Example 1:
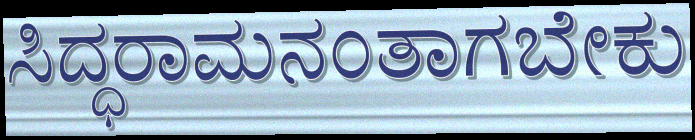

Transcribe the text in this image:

ಸಿದ್ಧರಾಮನಂತಾಗಬೇಕು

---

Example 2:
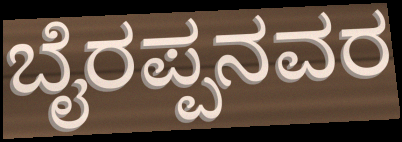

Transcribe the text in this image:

ಬೈರಪ್ಪನವರ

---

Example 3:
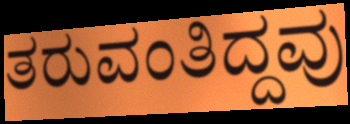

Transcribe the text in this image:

ತರುವಂತಿದ್ದವು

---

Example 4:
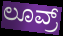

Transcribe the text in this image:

ಲೂವ್ರ್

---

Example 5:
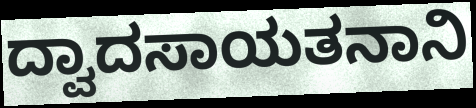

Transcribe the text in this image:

ದ್ವಾದಸಾಯತನಾನಿ